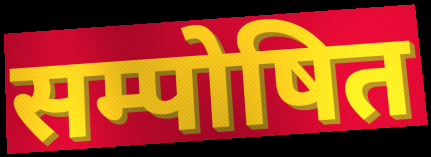
सम्पोषित